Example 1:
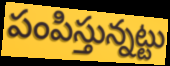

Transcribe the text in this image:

పంపిస్తున్నట్టు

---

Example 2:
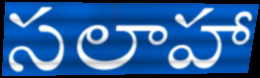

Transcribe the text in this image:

సలాహా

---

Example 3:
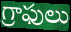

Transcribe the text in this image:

గ్రాఫులు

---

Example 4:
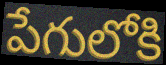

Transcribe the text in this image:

పేగులోకి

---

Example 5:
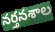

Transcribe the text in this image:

నర్తనశాల